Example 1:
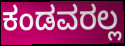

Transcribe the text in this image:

ಕಂಡವರಲ್ಲ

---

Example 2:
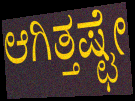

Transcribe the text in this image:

ಆಗಿತ್ತಷ್ಟೇ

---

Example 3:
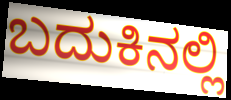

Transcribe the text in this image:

ಬದುಕಿನಲ್ಲಿ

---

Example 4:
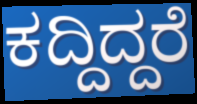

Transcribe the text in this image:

ಕದ್ದಿದ್ದರೆ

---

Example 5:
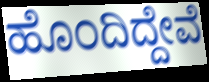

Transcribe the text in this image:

ಹೊಂದಿದ್ದೇವೆ